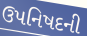
ઉપનિષદની